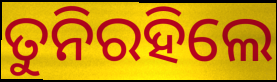
ତୁନିରହିଲେ